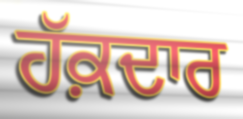
ਹੱਕ਼ਦਾਰ